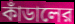
কাঁডালের